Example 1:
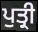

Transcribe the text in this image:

ਪੁਤ੍ਰੀ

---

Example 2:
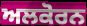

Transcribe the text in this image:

ਅਲਕੋਰਨ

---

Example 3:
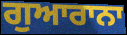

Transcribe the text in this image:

ਗੁਆਰਾਨਾ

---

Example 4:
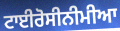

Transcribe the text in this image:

ਟਾਈਰੋਸੀਨੀਮੀਆ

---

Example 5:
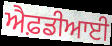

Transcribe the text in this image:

ਐਫ਼ਡੀਆਈ